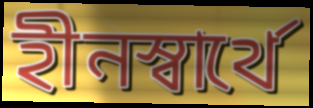
হীনস্বার্থে